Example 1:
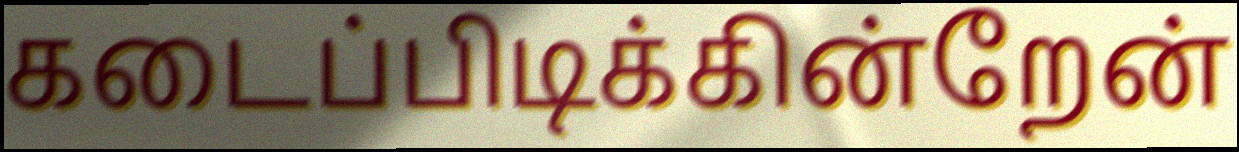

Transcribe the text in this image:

கடைப்பிடிக்கின்றேன்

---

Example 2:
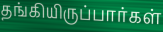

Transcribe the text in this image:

தங்கியிருப்பார்கள்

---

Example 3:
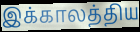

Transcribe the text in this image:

இக்காலத்திய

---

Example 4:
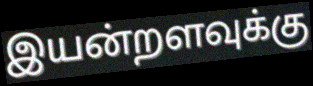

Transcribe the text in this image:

இயன்றளவுக்கு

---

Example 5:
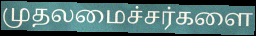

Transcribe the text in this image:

முதலமைச்சர்களை